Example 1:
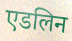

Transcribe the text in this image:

एडलिन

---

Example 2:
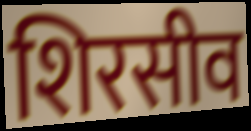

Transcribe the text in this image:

शिरसीव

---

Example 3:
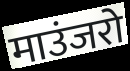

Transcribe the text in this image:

माउंजरो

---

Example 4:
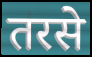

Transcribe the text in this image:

तरसे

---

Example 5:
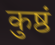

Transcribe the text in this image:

कुष्ठं